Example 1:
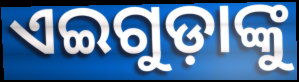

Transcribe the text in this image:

ଏଇଗୁଡ଼ାଙ୍କୁ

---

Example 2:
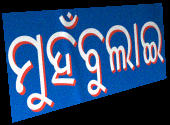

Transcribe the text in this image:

ମୁହଁବୁଲାଇ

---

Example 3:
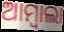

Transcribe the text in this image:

ଆମ୍ବାଲା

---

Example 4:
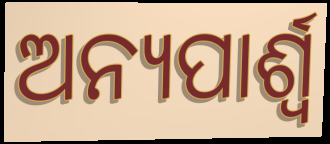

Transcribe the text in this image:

ଅନ୍ୟପାର୍ଶ୍ୱ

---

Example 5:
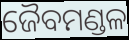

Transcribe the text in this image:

ଜୈବମଣ୍ଡଳ